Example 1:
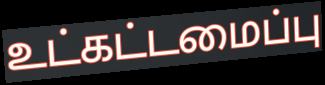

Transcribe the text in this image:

உட்கட்டமைப்பு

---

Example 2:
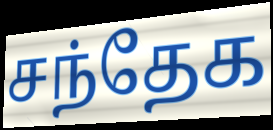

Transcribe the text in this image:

சந்தேக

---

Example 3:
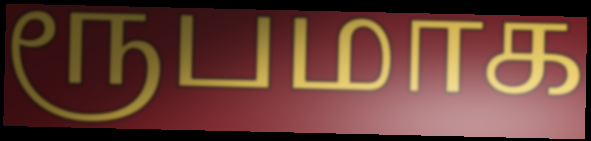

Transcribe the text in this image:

ரூபமாக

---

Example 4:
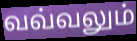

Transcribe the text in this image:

வவ்வலும்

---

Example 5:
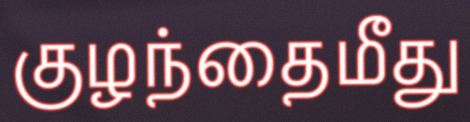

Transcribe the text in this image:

குழந்தைமீது